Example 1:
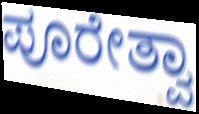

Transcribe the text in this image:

ಪೂರೇತ್ವಾ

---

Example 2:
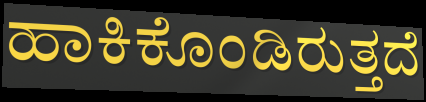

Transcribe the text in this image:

ಹಾಕಿಕೊಂಡಿರುತ್ತದೆ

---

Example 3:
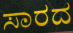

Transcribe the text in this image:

ಸಾರದ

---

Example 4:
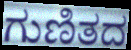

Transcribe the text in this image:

ಗುಣಿತದ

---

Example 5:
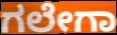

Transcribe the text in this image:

ಗಲೇಗಾ